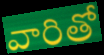
వారితో